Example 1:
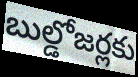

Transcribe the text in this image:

బుల్డోజర్లకు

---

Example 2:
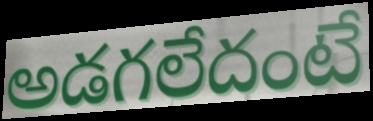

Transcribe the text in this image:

అడగలేదంటే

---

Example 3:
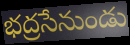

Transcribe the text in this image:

భద్రసేనుండు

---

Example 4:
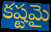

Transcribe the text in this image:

కష్టమై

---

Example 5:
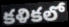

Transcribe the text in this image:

కళికలో